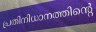
പ്രതിനിധാനത്തിന്റെ